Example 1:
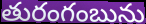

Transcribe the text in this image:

తురంగంబును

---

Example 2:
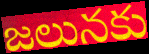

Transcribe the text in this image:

జలునకు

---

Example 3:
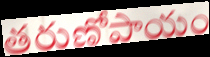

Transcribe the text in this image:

తరుణోపాయం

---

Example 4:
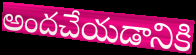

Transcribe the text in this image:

అందచేయడానికి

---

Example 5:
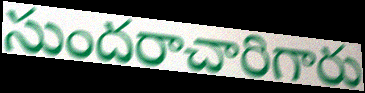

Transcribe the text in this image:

సుందరాచారిగారు